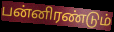
பன்னிரண்டும்